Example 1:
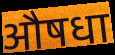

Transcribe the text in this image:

औषधा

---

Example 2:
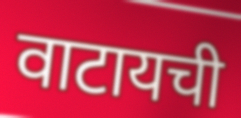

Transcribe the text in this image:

वाटायची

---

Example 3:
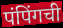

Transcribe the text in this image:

पंपिंगची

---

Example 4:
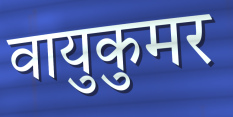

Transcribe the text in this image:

वायुकुमर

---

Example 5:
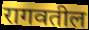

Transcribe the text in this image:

रागवतील